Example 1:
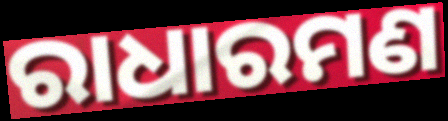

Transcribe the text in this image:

ରାଧାରମଣ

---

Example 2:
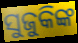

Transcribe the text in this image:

ସୁଜୁକିଙ୍କ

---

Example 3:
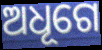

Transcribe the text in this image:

ଅଧୂଗେ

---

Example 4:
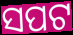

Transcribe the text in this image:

ସପଟ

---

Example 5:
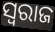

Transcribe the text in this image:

ସ୍ବରାଜ